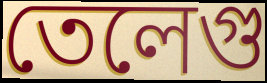
তেলেগু